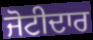
ਜੋਟੀਦਾਰ